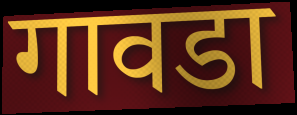
गावडा